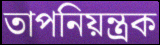
তাপনিয়ন্ত্রক